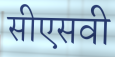
सीएसवी